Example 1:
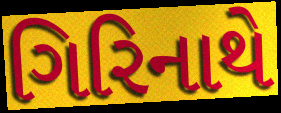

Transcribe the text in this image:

ગિરિનાથે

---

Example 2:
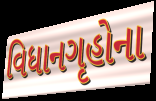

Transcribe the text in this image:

વિધાનગૃહોના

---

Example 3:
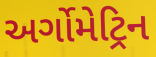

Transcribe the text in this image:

અર્ગોમેટ્રિન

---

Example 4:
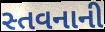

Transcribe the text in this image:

સ્તવનાની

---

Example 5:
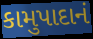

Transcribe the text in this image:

કામુપાદાનં